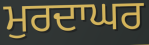
ਮੁਰਦਾਘਰ